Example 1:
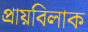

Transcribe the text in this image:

প্ৰায়বিলাক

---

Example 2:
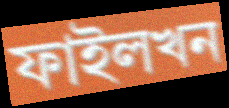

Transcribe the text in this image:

ফাইলখন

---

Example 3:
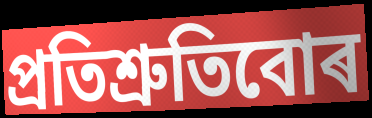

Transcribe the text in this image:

প্ৰতিশ্ৰুতিবোৰ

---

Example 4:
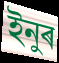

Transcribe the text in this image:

ইনুৰ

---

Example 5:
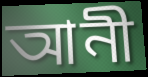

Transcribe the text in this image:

আনী